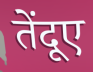
तेंदूए